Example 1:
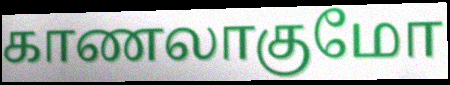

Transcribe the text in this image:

காணலாகுமோ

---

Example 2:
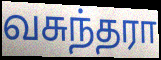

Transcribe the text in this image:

வசுந்தரா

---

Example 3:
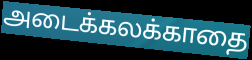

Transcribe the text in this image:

அடைக்கலக்காதை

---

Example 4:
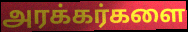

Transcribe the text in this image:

அரக்கர்களை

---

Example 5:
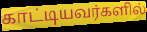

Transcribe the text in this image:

காட்டியவர்களில்